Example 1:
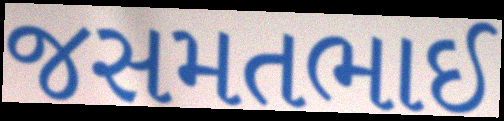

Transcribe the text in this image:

જસમતભાઈ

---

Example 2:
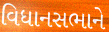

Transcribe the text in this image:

વિધાનસભાને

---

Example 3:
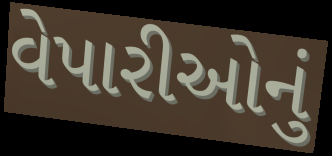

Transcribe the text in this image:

વેપારીઓનું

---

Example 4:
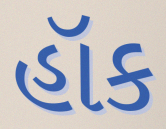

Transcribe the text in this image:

હૉક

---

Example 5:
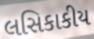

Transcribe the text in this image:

લસિકાકીય